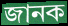
জানক